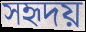
সহৃদয়